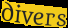
divers